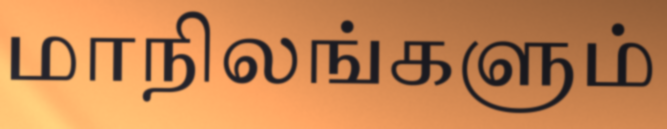
மாநிலங்களும்